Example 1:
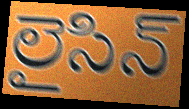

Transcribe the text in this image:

లైసిన్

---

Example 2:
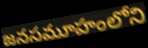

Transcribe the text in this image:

జనసమూహంలోని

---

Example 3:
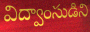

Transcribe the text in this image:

విద్వాంసుడిని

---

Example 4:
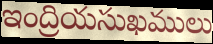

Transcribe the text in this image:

ఇంద్రియసుఖములు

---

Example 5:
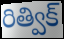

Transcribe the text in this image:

రిత్విక్